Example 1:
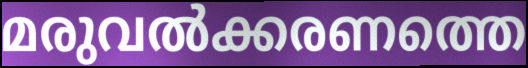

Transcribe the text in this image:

മരുവൽക്കരണത്തെ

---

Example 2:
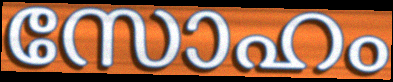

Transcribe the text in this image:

സോഹം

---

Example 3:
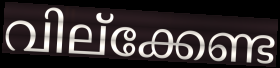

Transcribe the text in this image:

വില്ക്കേണ്ട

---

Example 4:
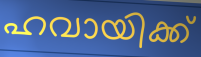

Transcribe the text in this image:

ഹവായിക്ക്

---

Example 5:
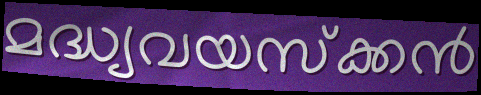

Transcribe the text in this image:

മദ്ധ്യവയസ്ക്കൻ